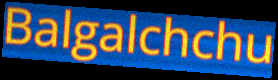
Balgalchchu